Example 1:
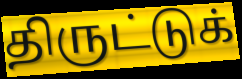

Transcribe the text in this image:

திருட்டுக்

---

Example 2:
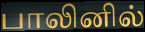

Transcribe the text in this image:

பாலினில்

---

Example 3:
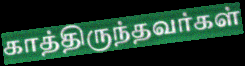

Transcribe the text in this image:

காத்திருந்தவர்கள்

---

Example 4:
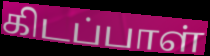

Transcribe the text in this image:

கிடப்பாள்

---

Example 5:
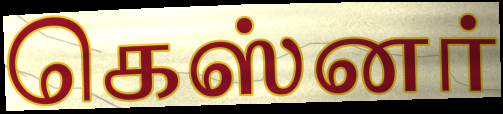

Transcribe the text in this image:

கெஸ்னர்